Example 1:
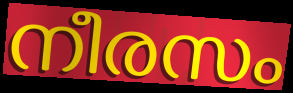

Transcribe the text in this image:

നീരസം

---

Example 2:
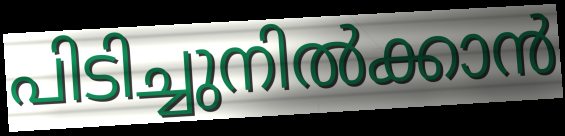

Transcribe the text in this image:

പിടിച്ചുനിൽക്കാൻ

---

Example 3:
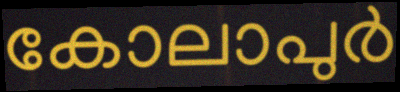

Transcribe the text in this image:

കോലാപുർ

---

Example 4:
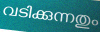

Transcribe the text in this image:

വടിക്കുന്നതും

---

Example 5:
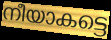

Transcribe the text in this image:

നീയാകട്ടെ